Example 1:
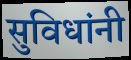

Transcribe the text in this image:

सुविधांनी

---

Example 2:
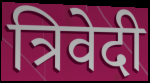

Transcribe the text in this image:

त्रिवेदी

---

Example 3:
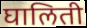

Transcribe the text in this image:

घालिती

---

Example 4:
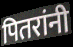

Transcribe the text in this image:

पितरांनी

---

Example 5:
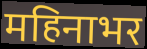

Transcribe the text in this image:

महिनाभर